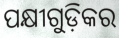
ପକ୍ଷୀଗୁଡ଼ିକର